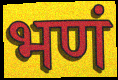
भणं